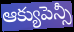
ఆక్యుపెన్సీ